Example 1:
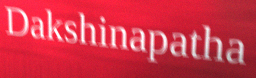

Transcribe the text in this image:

Dakshinapatha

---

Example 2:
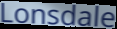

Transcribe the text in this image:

Lonsdale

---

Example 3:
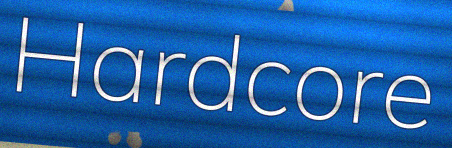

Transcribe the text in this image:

Hardcore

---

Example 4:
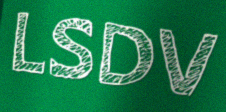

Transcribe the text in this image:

LSDV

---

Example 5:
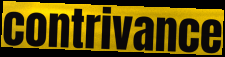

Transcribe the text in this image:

contrivance